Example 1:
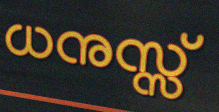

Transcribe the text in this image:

ധനുസ്സ്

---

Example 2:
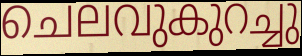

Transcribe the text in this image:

ചെലവുകുറച്ചു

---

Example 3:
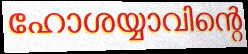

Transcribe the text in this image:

ഹോശയ്യാവിന്റെ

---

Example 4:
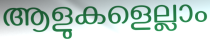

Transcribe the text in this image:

ആളുകളെല്ലാം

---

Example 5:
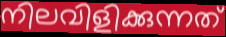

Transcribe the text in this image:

നിലവിളിക്കുന്നത്